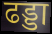
ढड्डा